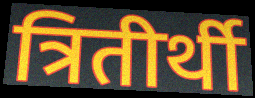
त्रितीर्थी